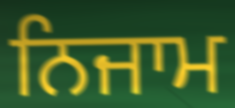
ਨਿਜਾਮ